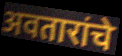
अवतारांचे